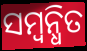
ସମ୍ବନ୍ଧିତ